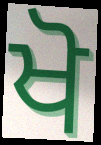
ਖੋ